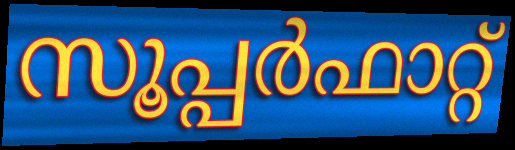
സൂപ്പർഫാറ്റ്